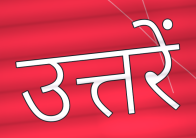
उत्तरें